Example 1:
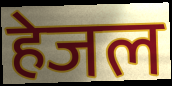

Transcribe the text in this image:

हेजल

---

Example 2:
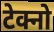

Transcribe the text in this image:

टेक्नो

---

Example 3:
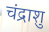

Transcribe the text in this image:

चंद्राशु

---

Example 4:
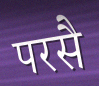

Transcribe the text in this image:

परसै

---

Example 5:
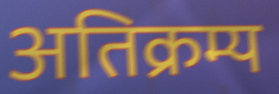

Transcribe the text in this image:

अतिक्रम्य